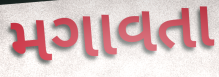
મગાવતા